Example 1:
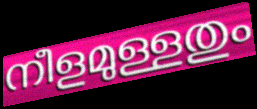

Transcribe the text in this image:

നീളമുള്ളതും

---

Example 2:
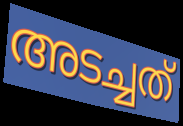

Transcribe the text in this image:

അടച്ചത്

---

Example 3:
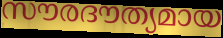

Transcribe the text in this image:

സൗരദൗത്യമായ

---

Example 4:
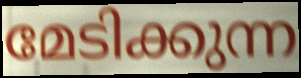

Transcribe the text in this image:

മേടിക്കുന്ന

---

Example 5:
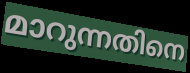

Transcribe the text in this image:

മാറുന്നതിനെ